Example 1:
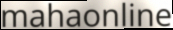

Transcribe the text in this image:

mahaonline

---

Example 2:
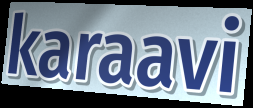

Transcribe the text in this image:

karaavi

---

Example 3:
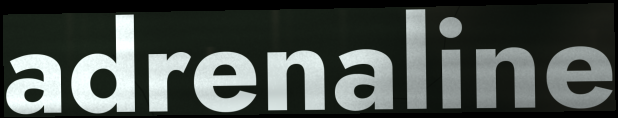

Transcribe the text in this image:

adrenaline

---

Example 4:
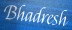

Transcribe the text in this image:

Bhadresh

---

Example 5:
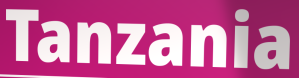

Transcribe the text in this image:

Tanzania